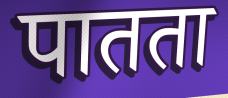
पातता